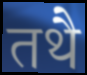
तथै